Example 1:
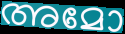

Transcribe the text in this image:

അമോ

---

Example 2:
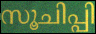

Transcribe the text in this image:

സൂചിപ്പി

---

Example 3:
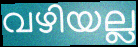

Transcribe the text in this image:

വഴിയല്ല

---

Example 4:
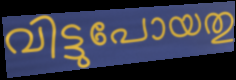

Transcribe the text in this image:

വിട്ടുപോയതു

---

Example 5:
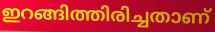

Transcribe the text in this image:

ഇറങ്ങിത്തിരിച്ചതാണ്